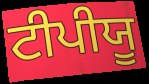
ਟੀਪੀਯੂ